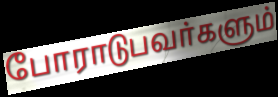
போராடுபவர்களும்